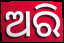
ଅରି